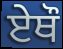
ਏਥੌ